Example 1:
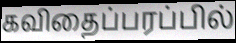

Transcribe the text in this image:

கவிதைப்பரப்பில்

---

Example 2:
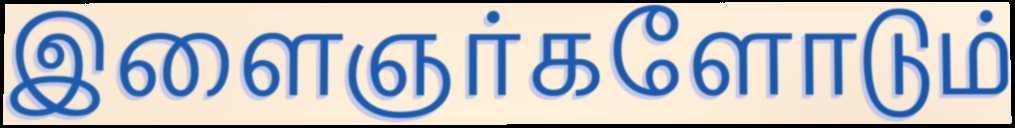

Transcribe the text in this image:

இளைஞர்களோடும்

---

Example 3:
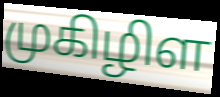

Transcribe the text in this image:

முகிழிள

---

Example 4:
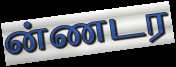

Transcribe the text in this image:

ன்ணடர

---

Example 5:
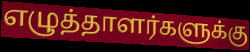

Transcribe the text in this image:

எழுத்தாளர்களுக்கு